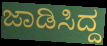
ಜಾಡಿಸಿದ್ದ